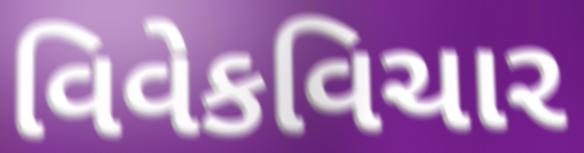
વિવેકવિચાર